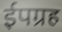
ईपग्रह